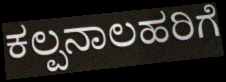
ಕಲ್ಪನಾಲಹರಿಗೆ